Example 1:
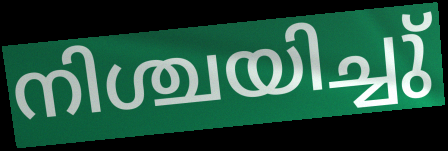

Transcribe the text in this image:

നിശ്ചയിച്ചു്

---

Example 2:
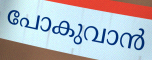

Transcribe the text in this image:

പോകുവാൻ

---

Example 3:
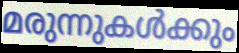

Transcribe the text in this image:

മരുന്നുകൾക്കും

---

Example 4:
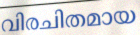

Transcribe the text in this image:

വിരചിതമായ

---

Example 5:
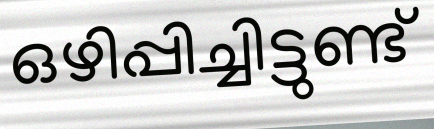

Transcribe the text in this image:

ഒഴിപ്പിച്ചിട്ടുണ്ട്